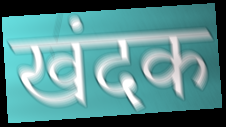
खंदक